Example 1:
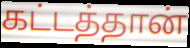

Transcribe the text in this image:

கட்டத்தான்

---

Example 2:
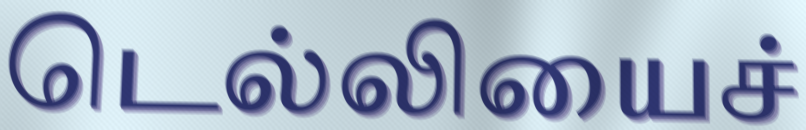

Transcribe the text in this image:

டெல்லியைச்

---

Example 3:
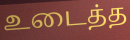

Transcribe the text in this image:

உடைத்த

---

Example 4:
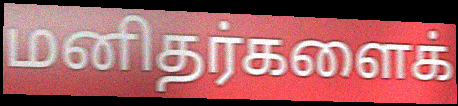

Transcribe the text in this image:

மனிதர்களைக்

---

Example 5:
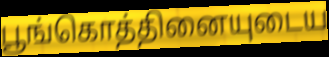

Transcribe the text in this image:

பூங்கொத்தினையுடைய